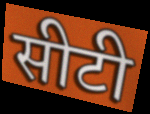
सीटी